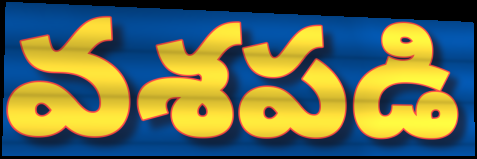
వశపడి